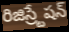
రిజిస్ర్టేషన్